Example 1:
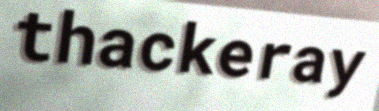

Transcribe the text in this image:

thackeray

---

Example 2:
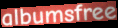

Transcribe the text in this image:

albumsfree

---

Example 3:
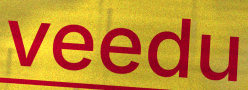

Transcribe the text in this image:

veedu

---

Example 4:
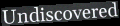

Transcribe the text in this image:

Undiscovered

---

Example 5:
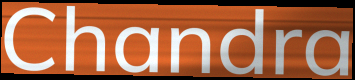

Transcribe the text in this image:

Chandra